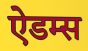
ऐडम्स